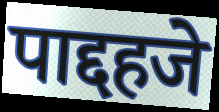
पाद्दहजे